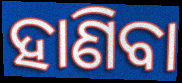
ହାଣିବା